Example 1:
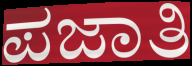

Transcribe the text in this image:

ಪಜಾತಿ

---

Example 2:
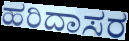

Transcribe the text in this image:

ಹರಿದಾಸರ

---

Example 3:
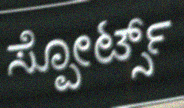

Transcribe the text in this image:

ಸ್ಪೋರ್ಟ್ಸ್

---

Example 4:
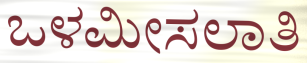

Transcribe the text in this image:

ಒಳಮೀಸಲಾತಿ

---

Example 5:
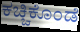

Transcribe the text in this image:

ಕಚ್ಚಿಕೊಂಡೆ